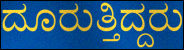
ದೂರುತ್ತಿದ್ದರು